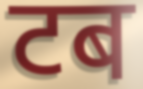
टब